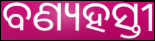
ବଣ୍ୟହସ୍ତୀ